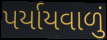
પર્યાયવાળું